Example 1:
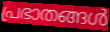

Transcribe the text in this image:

പ്രഭാതങ്ങൾ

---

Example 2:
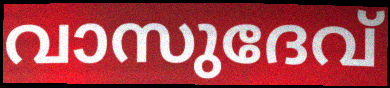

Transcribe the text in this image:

വാസുദേവ്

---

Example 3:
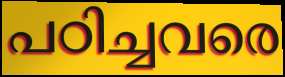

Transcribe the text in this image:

പഠിച്ചവരെ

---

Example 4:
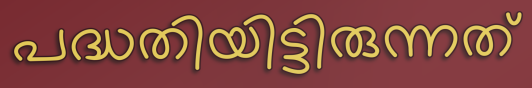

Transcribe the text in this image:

പദ്ധതിയിട്ടിരുന്നത്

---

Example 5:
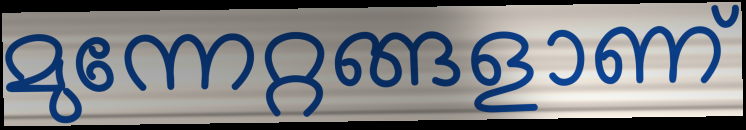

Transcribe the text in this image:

മുന്നേറ്റങ്ങളാണ്